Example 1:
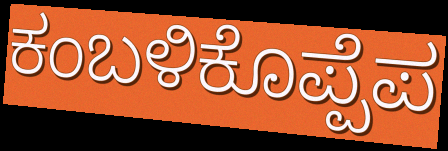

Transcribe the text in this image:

ಕಂಬಳಿಕೊಪ್ಪೆಪ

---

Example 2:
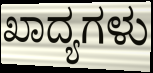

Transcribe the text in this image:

ಖಾದ್ಯಗಳು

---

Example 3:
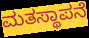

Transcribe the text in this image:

ಮತಸ್ಥಾಪನೆ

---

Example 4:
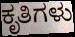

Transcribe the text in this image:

ಕೃತಿಗಳು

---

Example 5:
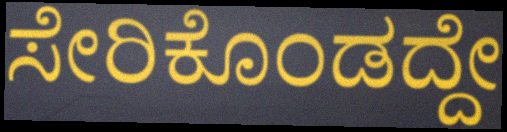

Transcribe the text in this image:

ಸೇರಿಕೊಂಡದ್ದೇ